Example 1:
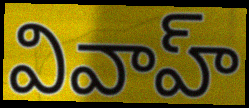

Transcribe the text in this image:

వివాహ్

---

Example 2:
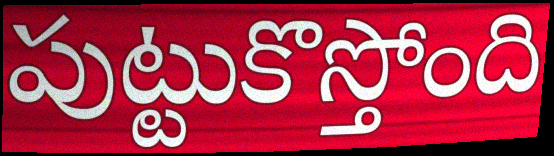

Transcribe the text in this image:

పుట్టుకొస్తోంది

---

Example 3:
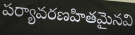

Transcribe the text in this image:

పర్యావరణహితమైనవి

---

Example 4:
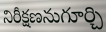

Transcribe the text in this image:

నిరీక్షణనుగూర్చి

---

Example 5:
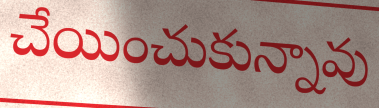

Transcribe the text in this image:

చేయించుకున్నావు